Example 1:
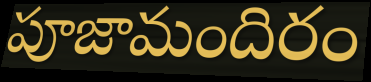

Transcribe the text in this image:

పూజామందిరం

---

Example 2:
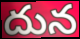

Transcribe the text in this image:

దున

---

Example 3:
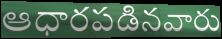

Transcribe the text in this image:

ఆధారపడినవారు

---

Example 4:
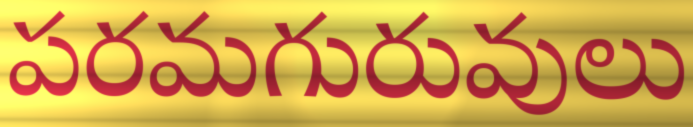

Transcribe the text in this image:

పరమగురువులు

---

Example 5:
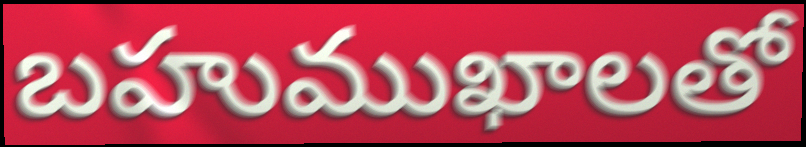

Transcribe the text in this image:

బహుముఖాలతో